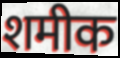
शमीक